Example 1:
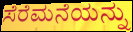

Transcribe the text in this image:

ಸೆರೆಮನೆಯನ್ನು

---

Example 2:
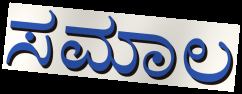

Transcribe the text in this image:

ಸಮಾಲ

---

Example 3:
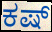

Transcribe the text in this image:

ಕಷ್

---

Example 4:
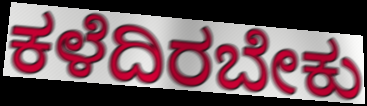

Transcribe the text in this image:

ಕಳೆದಿರಬೇಕು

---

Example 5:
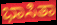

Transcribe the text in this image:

ಭಾಸಿತಾ